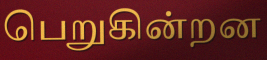
பெறுகின்றன